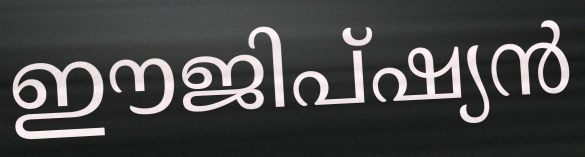
ഈജിപ്ഷ്യൻ